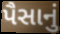
પૈસાનું